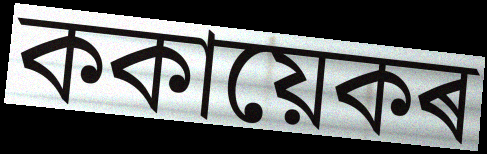
ককায়েকৰ